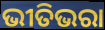
ଭୀତିଭରା